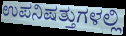
ಉಪನಿಷತ್ತುಗಳಲ್ಲಿ